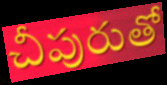
చీపురుతో